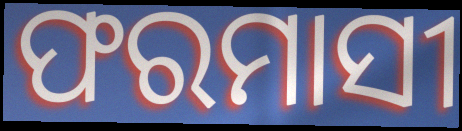
ଫରମାସୀ